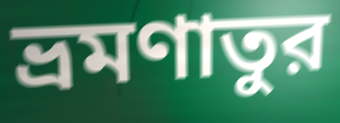
ভ্রমণাতুর